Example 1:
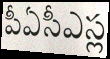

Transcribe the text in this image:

పీఏసీఎస్ల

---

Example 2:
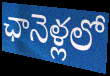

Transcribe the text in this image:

ఛానెళ్లలో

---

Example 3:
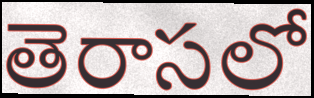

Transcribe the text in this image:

తెరాసలో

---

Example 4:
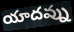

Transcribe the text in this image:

యాదవ్ను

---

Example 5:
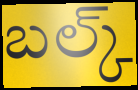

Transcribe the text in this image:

బల్క్